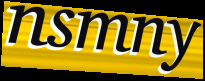
nsmny